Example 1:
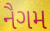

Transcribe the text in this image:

નૈગમ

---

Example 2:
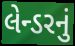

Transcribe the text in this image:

લેન્ડરનું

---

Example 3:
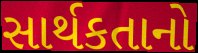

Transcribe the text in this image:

સાર્થકતાનો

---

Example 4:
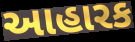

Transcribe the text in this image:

આહારક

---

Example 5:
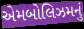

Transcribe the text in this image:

એમબોલિઝમનું